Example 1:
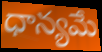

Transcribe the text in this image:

ధాన్యమే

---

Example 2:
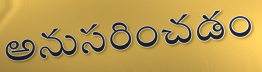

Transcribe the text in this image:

అనుసరించడం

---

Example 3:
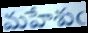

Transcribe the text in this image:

మహేశుఁ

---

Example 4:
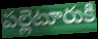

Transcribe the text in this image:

పల్లెటూరుకి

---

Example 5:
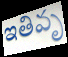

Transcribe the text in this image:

ఇతివృ